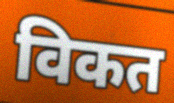
विकत